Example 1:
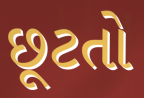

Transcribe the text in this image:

છૂટતો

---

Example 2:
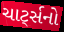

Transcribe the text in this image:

ચાર્ટ્સનો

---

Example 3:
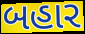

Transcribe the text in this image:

બહાર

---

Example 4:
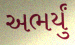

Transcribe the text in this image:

અભર્યું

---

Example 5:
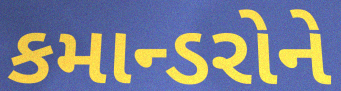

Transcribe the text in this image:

કમાન્ડરોને